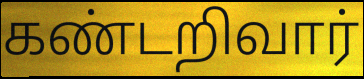
கண்டறிவார்